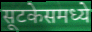
सूटकेसमध्ये